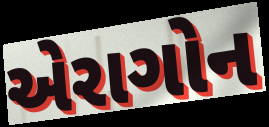
એરાગોન